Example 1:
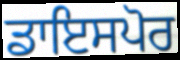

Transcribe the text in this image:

ਡਾਇਸਪੋਰ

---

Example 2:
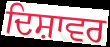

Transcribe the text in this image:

ਦਿਸ਼ਾਵਰ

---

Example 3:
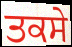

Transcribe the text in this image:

ਤਕਸੇ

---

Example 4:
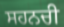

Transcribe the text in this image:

ਸਹਨਚੀ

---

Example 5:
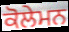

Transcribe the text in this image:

ਕੋਲੇਮਨ